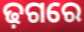
ଢ଼ଗରେ